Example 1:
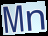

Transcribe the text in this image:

Mn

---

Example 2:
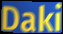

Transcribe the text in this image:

Daki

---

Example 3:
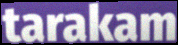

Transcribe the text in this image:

tarakam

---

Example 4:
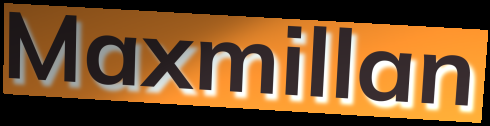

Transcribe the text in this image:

Maxmillan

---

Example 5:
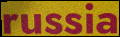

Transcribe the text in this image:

russia